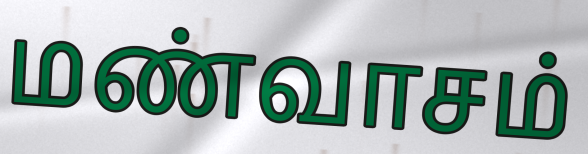
மண்வாசம்